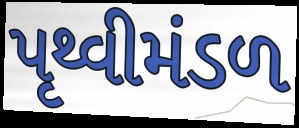
પૃથ્વીમંડળ